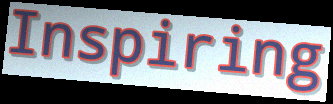
Inspiring